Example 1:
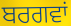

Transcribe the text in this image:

ਬਰਗਵਾਂ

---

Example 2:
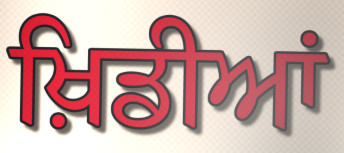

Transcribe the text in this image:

ਖ਼ਿਡੀਆਂ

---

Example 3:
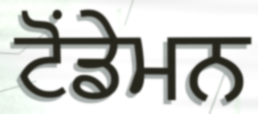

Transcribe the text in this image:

ਟੋਂਡੇਮਨ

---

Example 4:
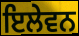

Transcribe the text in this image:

ਇਲੇਵਨ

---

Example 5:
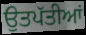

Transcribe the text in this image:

ਉਤਪੱਤੀਆਂ